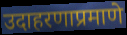
उदाहरणाप्रमाणे